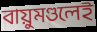
বায়ুমণ্ডলেই